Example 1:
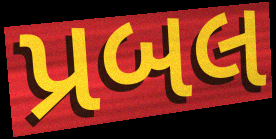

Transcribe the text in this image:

પ્રબલ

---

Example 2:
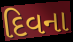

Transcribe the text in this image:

દિવના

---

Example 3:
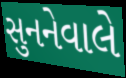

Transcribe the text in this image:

સુનનેવાલે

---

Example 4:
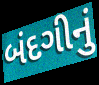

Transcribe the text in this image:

બંદગીનું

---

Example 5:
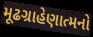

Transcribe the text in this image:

મૂઢગ્રાહેણાત્મનો